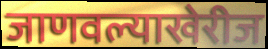
जाणवल्याखेरीज